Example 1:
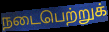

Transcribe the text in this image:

நடைபெற்றுக்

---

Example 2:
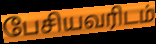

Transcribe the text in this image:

பேசியவரிடம்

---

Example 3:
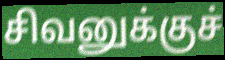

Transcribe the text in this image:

சிவனுக்குச்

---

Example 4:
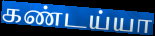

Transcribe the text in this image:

கண்டய்யா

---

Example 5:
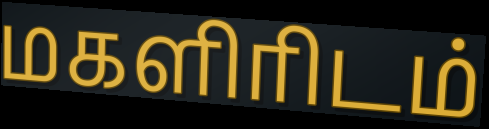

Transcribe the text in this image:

மகளிரிடம்